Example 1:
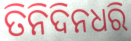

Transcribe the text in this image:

ତିନିଦିନଧରି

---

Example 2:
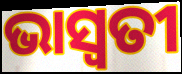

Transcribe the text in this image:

ଭାସ୍ବତୀ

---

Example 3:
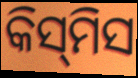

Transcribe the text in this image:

କିସ୍‌ମିସ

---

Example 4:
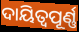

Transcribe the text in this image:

ଦାୟିତ୍ବପୂର୍ଣ୍ଣ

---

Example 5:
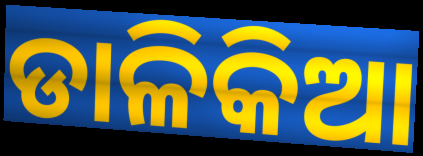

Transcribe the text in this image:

ଡାଳିକିଆ